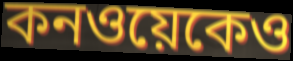
কনওয়েকেও